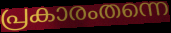
പ്രകാരംതന്നെ